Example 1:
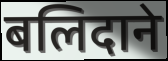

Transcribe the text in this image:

बलिदाने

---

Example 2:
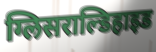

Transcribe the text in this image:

ग्लिसराल्डिहाइड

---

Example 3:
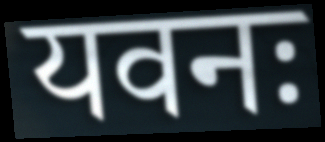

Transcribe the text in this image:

यवनः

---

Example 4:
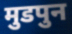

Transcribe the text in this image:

मुडपुन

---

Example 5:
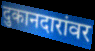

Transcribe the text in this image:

दुकानदारांवर